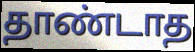
தாண்டாத